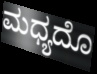
ಮಧ್ಯದೊ